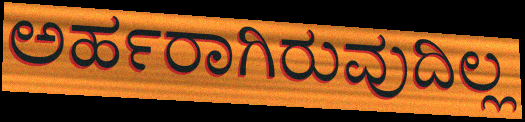
ಅರ್ಹರಾಗಿರುವುದಿಲ್ಲ